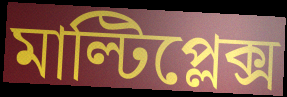
মাল্টিপ্লেক্স